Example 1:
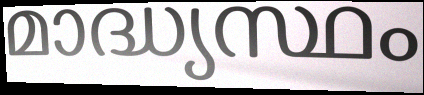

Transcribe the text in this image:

മാദ്ധ്യസ്ഥം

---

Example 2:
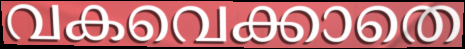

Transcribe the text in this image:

വകവെക്കാതെ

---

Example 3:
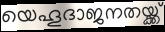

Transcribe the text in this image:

യെഹൂദാജനതയ്ക്ക്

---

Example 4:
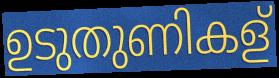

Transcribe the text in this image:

ഉടുതുണികള്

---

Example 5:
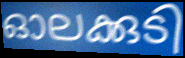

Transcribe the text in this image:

ഓലക്കുടി